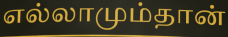
எல்லாமும்தான்